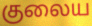
குலைய